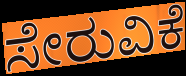
ಸೇರುವಿಕೆ